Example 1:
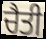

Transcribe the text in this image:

ਚੈਤੀ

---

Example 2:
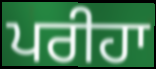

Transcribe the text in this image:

ਪਰੀਹਾ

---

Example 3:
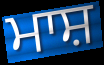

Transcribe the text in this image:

ਮਾਸ਼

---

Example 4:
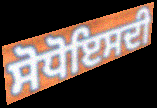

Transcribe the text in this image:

ਸੋਧੋਇਸਦੀ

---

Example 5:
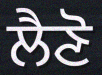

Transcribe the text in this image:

ਲੈਣੋ